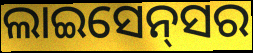
ଲାଇସେନ୍‌ସର